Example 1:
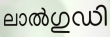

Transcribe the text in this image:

ലാൽഗുഡി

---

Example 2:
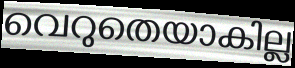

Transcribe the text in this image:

വെറുതെയാകില്ല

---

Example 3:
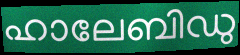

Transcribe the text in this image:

ഹാലേബിഡു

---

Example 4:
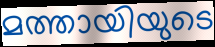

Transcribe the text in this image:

മത്തായിയുടെ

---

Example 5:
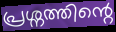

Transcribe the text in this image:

പ്രശ്നത്തിന്റെ